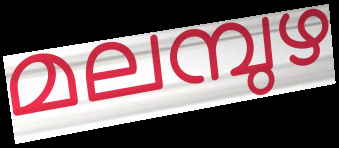
മലമ്പുഴ